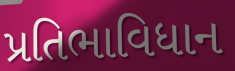
પ્રતિભાવિધાન